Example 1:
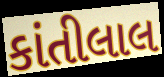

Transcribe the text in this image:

કાંતીલાલ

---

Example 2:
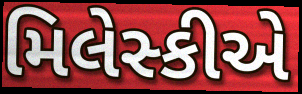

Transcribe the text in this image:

મિલેસ્કીએ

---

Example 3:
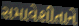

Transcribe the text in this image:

સમાવેશીતાને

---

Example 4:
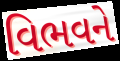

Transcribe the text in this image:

વિભવને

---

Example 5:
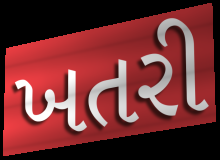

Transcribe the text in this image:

ખતરી